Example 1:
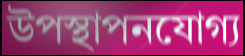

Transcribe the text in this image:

উপস্থাপনযোগ্য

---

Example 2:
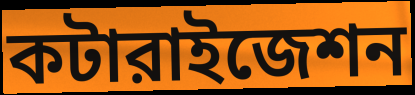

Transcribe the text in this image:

কটারাইজেশন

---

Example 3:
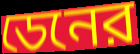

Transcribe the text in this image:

ডেনের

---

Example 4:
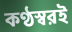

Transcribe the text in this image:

কণ্ঠস্বরই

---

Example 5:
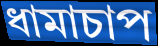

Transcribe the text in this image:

ধামাচাপ